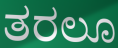
ತರಲೂ